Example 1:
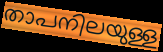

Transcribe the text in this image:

താപനിലയുള്ള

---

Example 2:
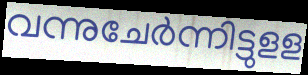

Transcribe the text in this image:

വന്നുചേർന്നിട്ടുളള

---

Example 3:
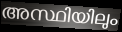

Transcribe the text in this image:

അസ്ഥിയിലും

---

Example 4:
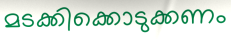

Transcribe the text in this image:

മടക്കിക്കൊടുക്കണം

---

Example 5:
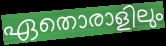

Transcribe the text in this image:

ഏതൊരാളിലും